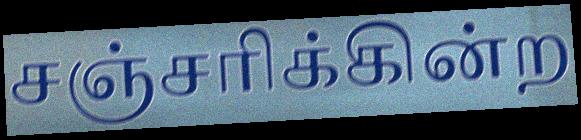
சஞ்சரிக்கின்ற